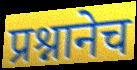
प्रश्नानेच